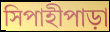
সিপাহীপাড়া